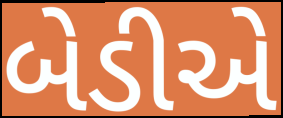
બેડીએ